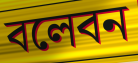
বলেবন